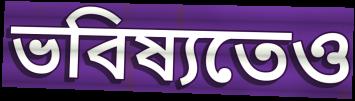
ভবিষ্যতেও